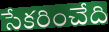
సేకరించేది